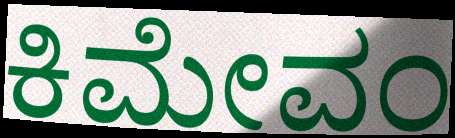
ಕಿಮೇವಂ